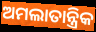
ଅମଲାତାନ୍ତ୍ରିକ